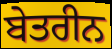
ਬੇਤਰੀਨ